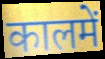
कालमें